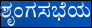
ಶೃಂಗಸಭೆಯ